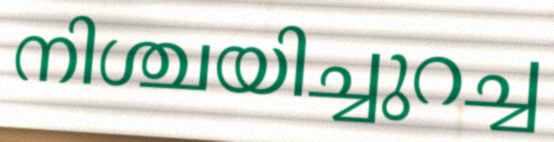
നിശ്ചയിച്ചുറച്ച